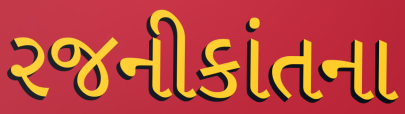
રજનીકાંતના